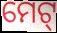
ମେଟ୍